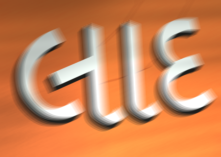
લાદ